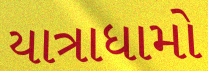
યાત્રાધામો